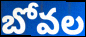
బోవల